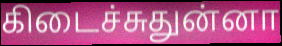
கிடைச்சுதுன்னா